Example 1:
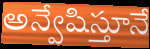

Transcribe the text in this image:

అన్వేషిస్తూనే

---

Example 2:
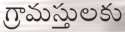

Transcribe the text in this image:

గ్రామస్తులకు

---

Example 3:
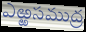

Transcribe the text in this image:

ఎఱ్ఱసముద్ర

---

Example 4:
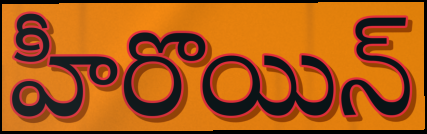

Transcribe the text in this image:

హీరొయిన్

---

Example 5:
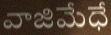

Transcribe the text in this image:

వాజిమేధే